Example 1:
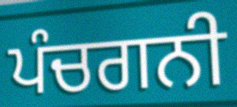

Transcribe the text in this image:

ਪੰਚਗਨੀ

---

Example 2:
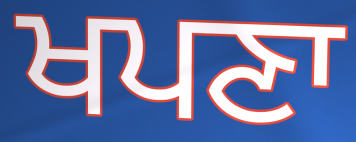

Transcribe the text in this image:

ਖਪਣਾ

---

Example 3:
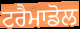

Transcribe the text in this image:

ਟਰੈਮਾਡੋਲ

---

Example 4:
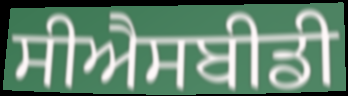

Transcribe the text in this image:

ਸੀਐਸਬੀਡੀ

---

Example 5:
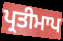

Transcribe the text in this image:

ਪ੍ਰਤੀਮਾਪ